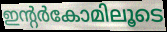
ഇന്റർകോമിലൂടെ